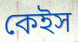
কেইস